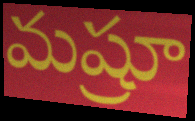
మష్రూ